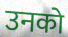
उनको